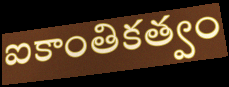
ఐకాంతికత్వం